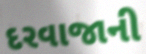
દરવાજાની